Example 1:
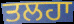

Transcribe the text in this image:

ਤਲਹਾ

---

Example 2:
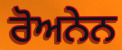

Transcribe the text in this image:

ਰੋਅਨੇਨ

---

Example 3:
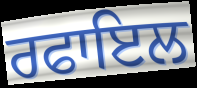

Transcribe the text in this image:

ਰਫਾਇਲ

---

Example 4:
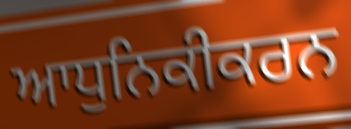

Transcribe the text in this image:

ਆਧੁਨਿਕੀਕਰਨ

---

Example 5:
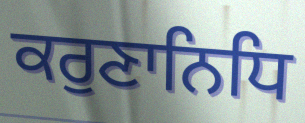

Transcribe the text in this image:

ਕਰੁਣਾਨਿਧਿ